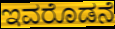
ಇವರೊಡನೆ